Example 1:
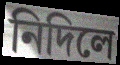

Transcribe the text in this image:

নিদিলে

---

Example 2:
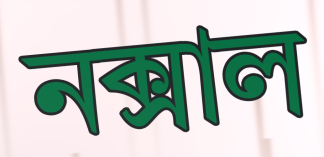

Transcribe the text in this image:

নক্সাল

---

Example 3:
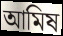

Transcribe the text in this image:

আমিষ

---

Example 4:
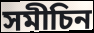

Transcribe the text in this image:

সমীচিন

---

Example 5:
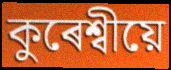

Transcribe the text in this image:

কুৰেশ্বীয়ে